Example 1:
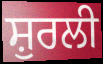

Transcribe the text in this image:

ਸ਼ੁਰਲੀ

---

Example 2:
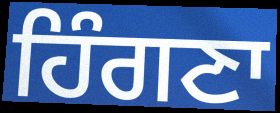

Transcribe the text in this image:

ਹਿੰਗਣਾ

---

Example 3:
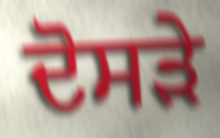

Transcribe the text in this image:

ਦੋਸੜੇ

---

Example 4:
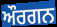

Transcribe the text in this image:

ਔਰਗਨ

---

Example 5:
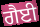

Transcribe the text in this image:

ਗੈਈ